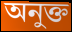
অনুক্ত